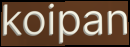
koipan